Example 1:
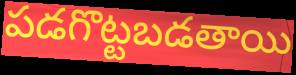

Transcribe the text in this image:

పడగొట్టబడతాయి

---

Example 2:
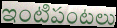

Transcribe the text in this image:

ఇంటిపంటలు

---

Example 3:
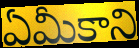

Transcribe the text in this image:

ఏమీకాని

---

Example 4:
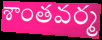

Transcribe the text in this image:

శాంతవర్మ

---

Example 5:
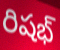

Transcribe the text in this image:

రిషభ్